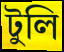
টুলি